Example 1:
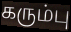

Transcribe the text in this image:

கரும்பு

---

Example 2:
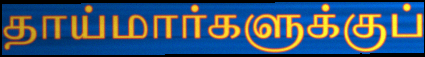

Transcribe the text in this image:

தாய்மார்களுக்குப்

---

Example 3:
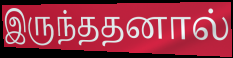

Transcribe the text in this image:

இருந்ததனால்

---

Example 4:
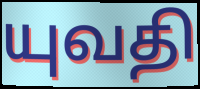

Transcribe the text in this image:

யுவதி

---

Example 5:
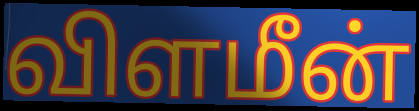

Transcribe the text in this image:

விளமீன்